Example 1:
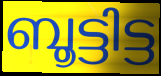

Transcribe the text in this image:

ബൂട്ടിട്ട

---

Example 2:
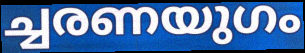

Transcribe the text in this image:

ച്ചരണയുഗം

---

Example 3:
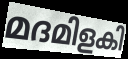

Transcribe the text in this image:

മദമിളകി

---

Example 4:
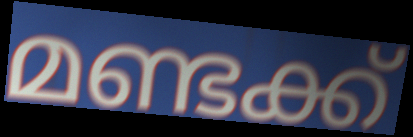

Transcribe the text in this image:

മണ്ടക്ക്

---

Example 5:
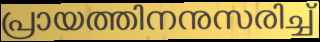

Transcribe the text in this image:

പ്രായത്തിനനുസരിച്ച്